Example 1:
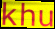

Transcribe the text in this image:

khu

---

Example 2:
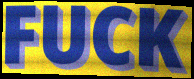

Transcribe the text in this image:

FUCK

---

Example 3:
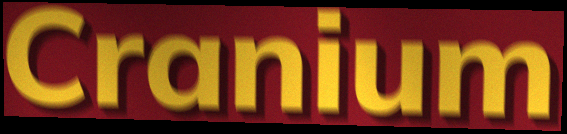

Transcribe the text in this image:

Cranium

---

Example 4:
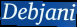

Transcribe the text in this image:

Debjani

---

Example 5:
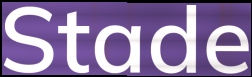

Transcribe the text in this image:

Stade